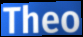
Theo